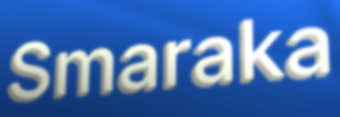
Smaraka